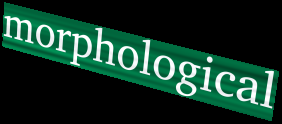
morphological